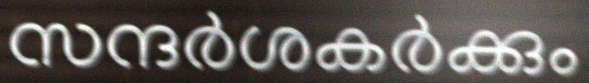
സന്ദർശകർക്കും